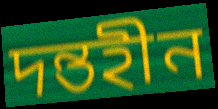
দন্তহীন